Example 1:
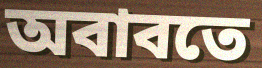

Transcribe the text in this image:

অবাবতে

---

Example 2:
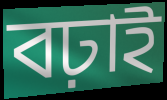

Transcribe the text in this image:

বঢ়াই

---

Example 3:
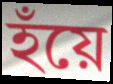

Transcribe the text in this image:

হঁয়ে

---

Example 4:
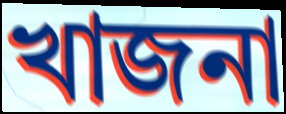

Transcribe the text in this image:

খাজনা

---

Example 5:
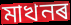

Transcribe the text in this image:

মাখনৰ